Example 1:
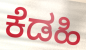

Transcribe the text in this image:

ಕೆಡಹಿ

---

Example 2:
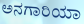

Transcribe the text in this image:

ಅನಗಾರಿಯಾ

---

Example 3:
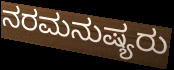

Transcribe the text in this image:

ನರಮನುಷ್ಯರು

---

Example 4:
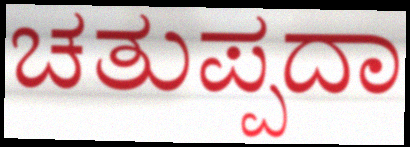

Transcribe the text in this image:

ಚತುಪ್ಪದಾ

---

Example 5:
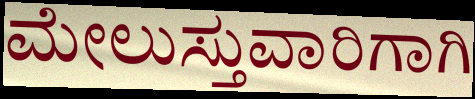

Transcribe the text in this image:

ಮೇಲುಸ್ತುವಾರಿಗಾಗಿ